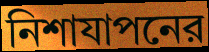
নিশাযাপনের